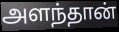
அளந்தான்